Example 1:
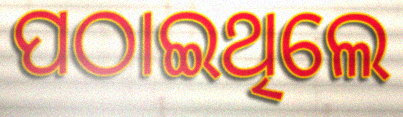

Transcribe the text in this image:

ପଠାଇଥିଲେ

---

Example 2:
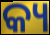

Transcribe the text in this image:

କ୍ୟ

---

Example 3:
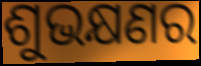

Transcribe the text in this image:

ଶୁଭକ୍ଷଣର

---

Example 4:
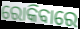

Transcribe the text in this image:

ରୋକିବାରେ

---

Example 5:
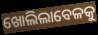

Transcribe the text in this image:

ଖୋଲିଲାବେଳକୁ